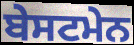
ਬੇਸਟਮੇਨ